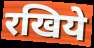
रखिये